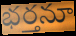
భర్తనూ